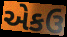
એકઉ